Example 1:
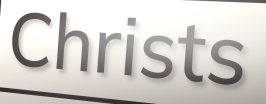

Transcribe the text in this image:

Christs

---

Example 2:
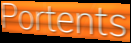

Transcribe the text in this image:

Portents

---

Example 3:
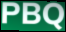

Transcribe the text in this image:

PBQ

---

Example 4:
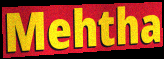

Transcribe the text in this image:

Mehtha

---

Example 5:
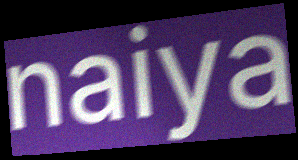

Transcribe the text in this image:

naiya